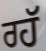
ਰਹੱ